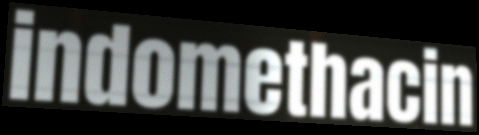
indomethacin